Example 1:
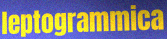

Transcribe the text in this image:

leptogrammica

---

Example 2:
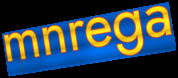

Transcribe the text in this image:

mnrega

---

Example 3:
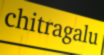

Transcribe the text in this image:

chitragalu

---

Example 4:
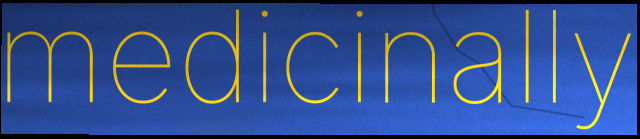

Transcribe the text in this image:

medicinally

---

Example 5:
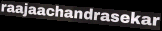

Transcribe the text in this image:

raajaachandrasekar